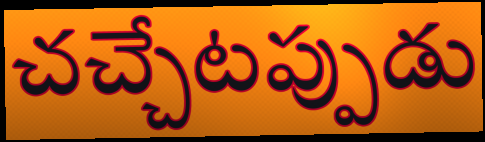
చచ్చేటప్పుడు